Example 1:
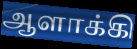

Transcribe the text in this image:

ஆளாக்கி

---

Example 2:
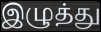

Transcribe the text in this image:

இழுத்து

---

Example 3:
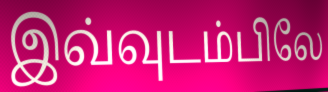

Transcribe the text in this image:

இவ்வுடம்பிலே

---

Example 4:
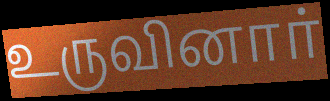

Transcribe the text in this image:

உருவினார்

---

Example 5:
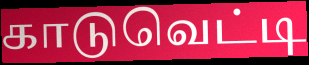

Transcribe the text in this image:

காடுவெட்டி